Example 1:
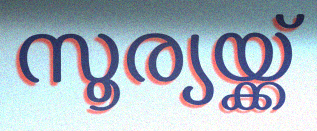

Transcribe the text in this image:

സൂര്യയ്ക്ക്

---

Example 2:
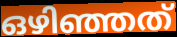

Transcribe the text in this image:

ഒഴിഞ്ഞത്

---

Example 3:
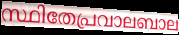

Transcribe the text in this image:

സ്ഥിതേപ്രവാലബാല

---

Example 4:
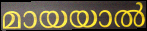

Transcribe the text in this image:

മായയാൽ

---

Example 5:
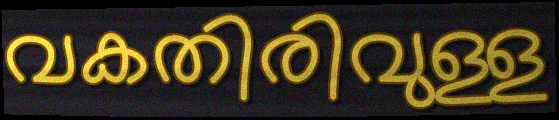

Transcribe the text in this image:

വകതിരിവുള്ള